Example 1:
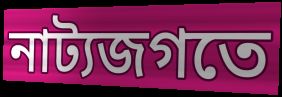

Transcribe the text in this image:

নাট্যজগতে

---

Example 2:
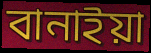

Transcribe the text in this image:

বানাইয়া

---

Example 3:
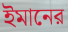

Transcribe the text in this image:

ইমানের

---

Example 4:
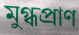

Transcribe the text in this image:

মুগ্ধপ্রাণ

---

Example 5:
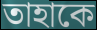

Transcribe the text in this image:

তাহাকে